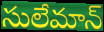
సులేమాన్